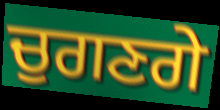
ਚੁਗਣਗੇ